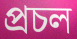
প্রচল